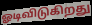
ஓடிவிடுகிறது